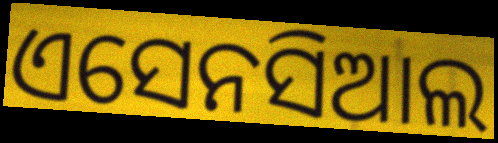
ଏସେନସିଆଲ